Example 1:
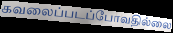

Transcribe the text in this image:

கவலைப்படப்போவதில்லை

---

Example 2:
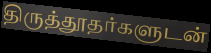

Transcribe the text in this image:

திருத்தூதர்களுடன்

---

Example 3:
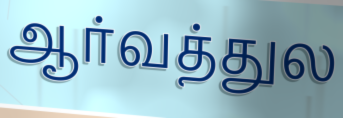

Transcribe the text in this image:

ஆர்வத்துல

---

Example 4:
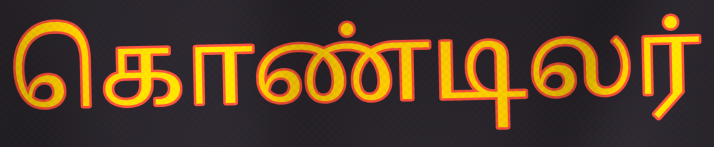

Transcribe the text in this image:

கொண்டிலர்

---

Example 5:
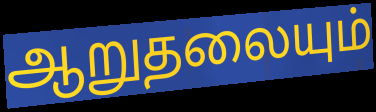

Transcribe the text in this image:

ஆறுதலையும்